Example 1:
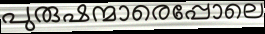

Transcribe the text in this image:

പുരുഷന്മാരെപ്പോലെ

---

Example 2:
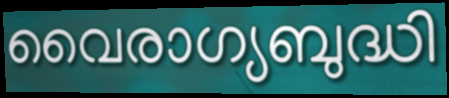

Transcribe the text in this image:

വൈരാഗ്യബുദ്ധി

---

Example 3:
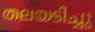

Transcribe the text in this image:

തലയടിച്ചു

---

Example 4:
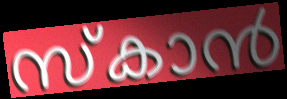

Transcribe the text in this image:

സ്കാൻ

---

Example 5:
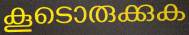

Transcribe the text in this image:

കൂടൊരുക്കുക